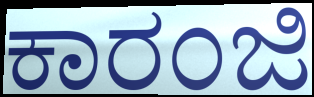
ಕಾರಂಜಿ